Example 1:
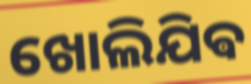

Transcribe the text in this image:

ଖୋଲିଯିଵ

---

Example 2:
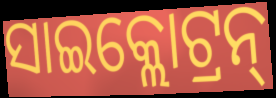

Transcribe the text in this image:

ସାଇକ୍ଲୋଟ୍ରନ୍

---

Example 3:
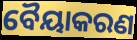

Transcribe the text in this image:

ବୈୟାକରଣ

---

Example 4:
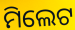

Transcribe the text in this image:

ମିଲେଟ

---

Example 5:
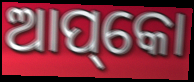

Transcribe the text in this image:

ଆପ୍‌କୋ